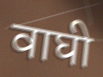
वाघी